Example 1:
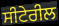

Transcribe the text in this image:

ਸੀਟੇਰੀਲ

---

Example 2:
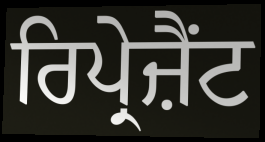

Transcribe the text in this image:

ਰਿਪ੍ਰੇਜ਼ੈਂਟ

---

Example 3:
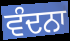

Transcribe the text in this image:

ਵੰਦਨਾ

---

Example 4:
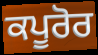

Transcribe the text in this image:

ਕਪੂਰੋਰ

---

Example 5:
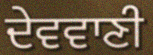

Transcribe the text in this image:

ਦੇਵਵਾਣੀ